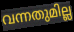
വന്നതുമില്ല